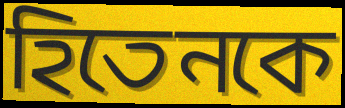
হিতেনকে